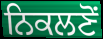
ਨਿਕਲਣੋਂ